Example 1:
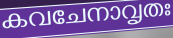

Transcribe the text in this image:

കവചേനാവൃതഃ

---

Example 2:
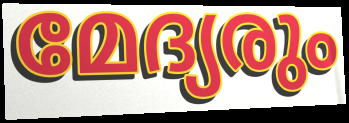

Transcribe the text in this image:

മേദ്യരും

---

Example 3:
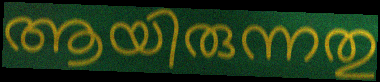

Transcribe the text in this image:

ആയിരുന്നതു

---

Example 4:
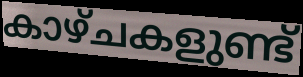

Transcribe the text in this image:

കാഴ്ചകളുണ്ട്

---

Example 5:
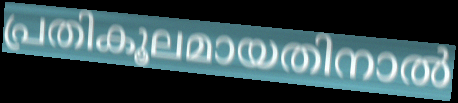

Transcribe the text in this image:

പ്രതികൂലമായതിനാൽ